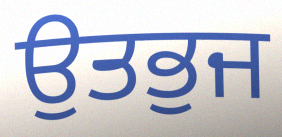
ਉਤਭੁਜ